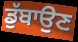
ਡੁੱਬਾਉਣ